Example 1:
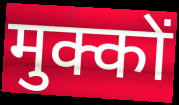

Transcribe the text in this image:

मुक्कों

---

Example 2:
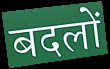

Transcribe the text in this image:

बदलों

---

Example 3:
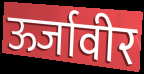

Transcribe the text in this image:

ऊर्जावीर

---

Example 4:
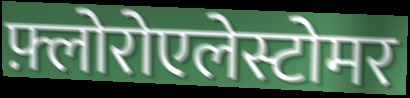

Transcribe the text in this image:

फ़्लोरोएलेस्टोमर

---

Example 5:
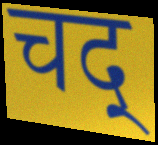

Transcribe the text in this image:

चद्